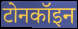
टोनकॉइन